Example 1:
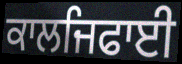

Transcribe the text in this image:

ਕਾਲਜਿਫਾਈ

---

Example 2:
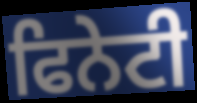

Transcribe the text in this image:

ਫਿਨੇਟੀ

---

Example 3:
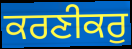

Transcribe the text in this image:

ਕਰਣੀਕਰੁ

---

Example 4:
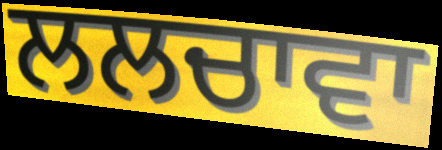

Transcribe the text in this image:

ਲਲਚਾਵਾ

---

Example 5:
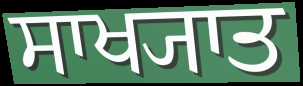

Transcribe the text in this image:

ਸਾਖ੍ਯਾਤ